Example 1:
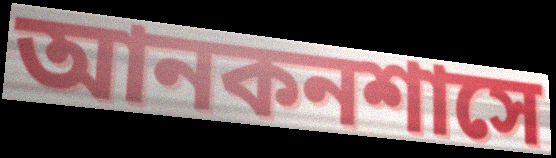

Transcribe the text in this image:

আনকনশাসে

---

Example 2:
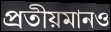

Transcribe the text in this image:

প্রতীয়মানও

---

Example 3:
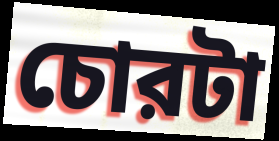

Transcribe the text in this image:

চোরটা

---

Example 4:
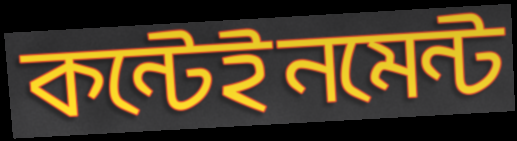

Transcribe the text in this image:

কন্টেইনমেন্ট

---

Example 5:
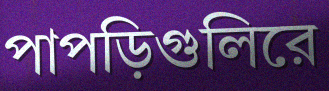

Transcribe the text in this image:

পাপড়িগুলিরে